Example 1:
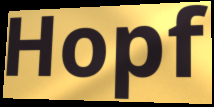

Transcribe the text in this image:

Hopf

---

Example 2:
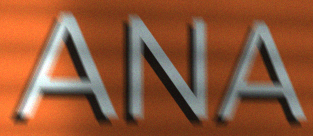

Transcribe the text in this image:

ANA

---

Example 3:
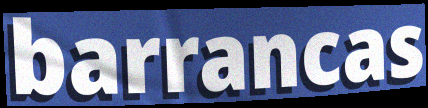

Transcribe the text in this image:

barrancas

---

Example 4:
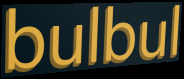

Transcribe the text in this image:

bulbul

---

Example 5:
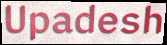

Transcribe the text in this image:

Upadesh